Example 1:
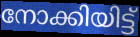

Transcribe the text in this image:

നോക്കിയിട്ട്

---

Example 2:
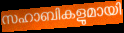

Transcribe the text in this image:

സഹാബികളുമായി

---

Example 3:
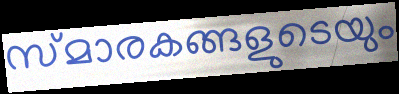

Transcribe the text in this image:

സ്മാരകങ്ങളുടെയും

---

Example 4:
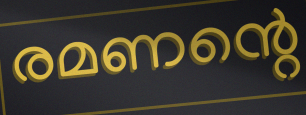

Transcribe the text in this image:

രമണന്റെ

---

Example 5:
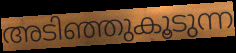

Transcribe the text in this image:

അടിഞ്ഞുകൂടുന്ന